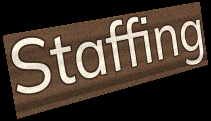
Staffing